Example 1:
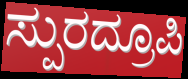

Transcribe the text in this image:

ಸ್ಪುರದ್ರೂಪಿ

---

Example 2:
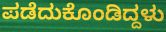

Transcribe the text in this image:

ಪಡೆದುಕೊಂಡಿದ್ದಳು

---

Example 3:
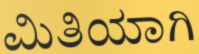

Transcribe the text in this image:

ಮಿತಿಯಾಗಿ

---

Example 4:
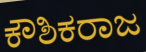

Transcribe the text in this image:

ಕೌಶಿಕರಾಜ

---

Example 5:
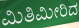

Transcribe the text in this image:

ಮಿತಿಮೀರಿದ